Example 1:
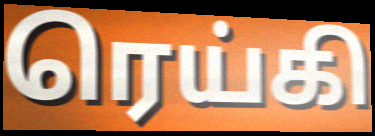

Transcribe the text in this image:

ரெய்கி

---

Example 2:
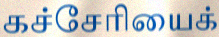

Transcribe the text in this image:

கச்சேரியைக்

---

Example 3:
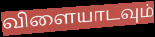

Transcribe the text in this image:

விளையாடவும்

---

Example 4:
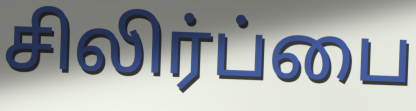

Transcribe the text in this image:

சிலிர்ப்பை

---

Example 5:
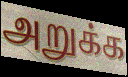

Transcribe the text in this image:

அறுக்க